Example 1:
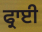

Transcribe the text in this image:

ਫ੍ਰਾਈ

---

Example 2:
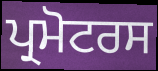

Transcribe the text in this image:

ਪ੍ਰਮੋਟਰਸ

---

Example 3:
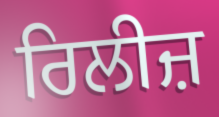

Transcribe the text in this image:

ਰਿਲੀਜ਼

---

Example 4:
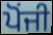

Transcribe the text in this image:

ਪੋਂਜੀ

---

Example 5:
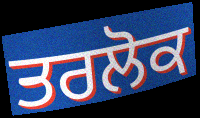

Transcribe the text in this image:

ਤਰਲੋਕ